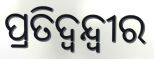
ପ୍ରତିଦ୍ବନ୍ଦ୍ବୀର